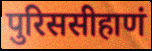
पुरिससीहाणं